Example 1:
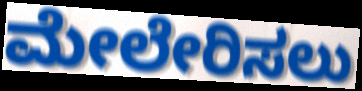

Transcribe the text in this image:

ಮೇಲೇರಿಸಲು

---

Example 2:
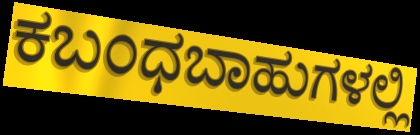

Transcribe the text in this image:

ಕಬಂಧಬಾಹುಗಳಲ್ಲಿ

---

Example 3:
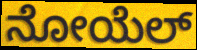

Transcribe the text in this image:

ನೋಯೆಲ್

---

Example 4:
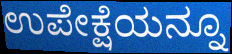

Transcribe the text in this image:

ಉಪೇಕ್ಷೆಯನ್ನೂ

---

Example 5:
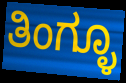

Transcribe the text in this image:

ತಿಂಗ್ಳೂ